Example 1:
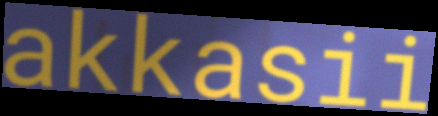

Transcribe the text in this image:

akkasii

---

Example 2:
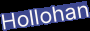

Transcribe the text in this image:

Hollohan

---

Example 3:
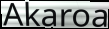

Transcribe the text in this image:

Akaroa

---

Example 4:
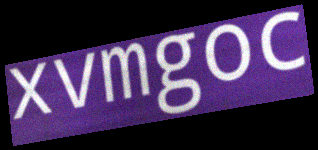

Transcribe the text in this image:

xvmgoc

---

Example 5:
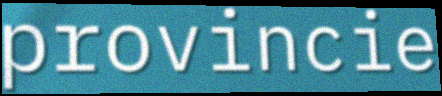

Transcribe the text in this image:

provincie